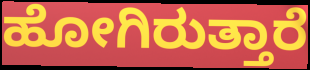
ಹೋಗಿರುತ್ತಾರೆ